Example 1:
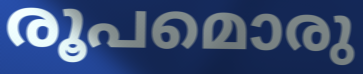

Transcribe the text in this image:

രൂപമൊരു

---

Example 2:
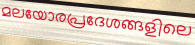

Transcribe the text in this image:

മലയോരപ്രദേശങ്ങളിലെ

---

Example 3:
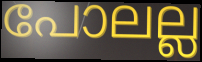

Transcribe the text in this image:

പോലല്ല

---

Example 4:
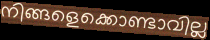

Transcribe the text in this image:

നിങ്ങളെക്കൊണ്ടാവില്ല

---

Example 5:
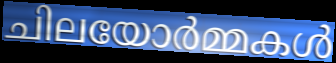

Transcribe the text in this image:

ചിലയോർമ്മകൾ